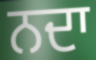
ਨਦਾ